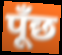
पूँछ